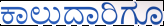
ಕಾಲುದಾರಿಗೂ